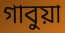
গাবুয়া